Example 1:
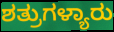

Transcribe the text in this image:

ಶತ್ರುಗಳ್ಯಾರು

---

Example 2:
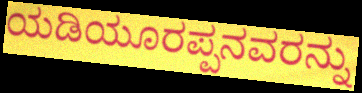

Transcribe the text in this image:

ಯಡಿಯೂರಪ್ಪನವರನ್ನು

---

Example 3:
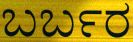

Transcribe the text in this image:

ಬರ್ಬರ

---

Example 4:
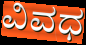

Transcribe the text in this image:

ವಿವಧ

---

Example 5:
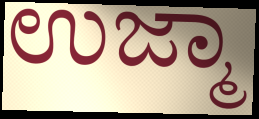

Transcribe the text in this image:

ಉಜ್ಮಾ